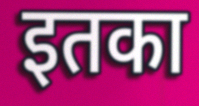
इतका